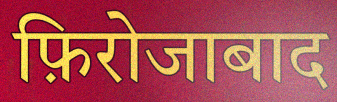
फ़िरोजाबाद